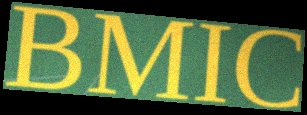
BMIC